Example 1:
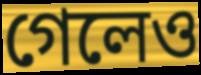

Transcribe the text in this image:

গেলেও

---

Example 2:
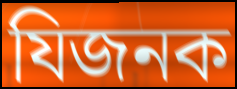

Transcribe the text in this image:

যিজনক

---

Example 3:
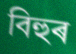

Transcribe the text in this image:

বিহুৰ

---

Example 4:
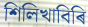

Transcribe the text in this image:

শিলিখাবিৰি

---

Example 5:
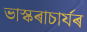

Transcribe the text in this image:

ভাস্কৰাচাৰ্যৰ